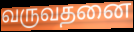
வருவதனை